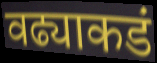
वढ्याकडं